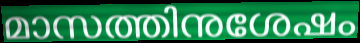
മാസത്തിനുശേഷം